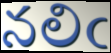
నలిఁ